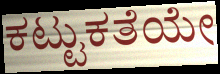
ಕಟ್ಟುಕತೆಯೇ